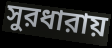
সুরধারায়